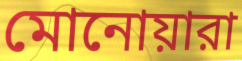
মোনোয়ারা